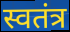
स्वतंत्र